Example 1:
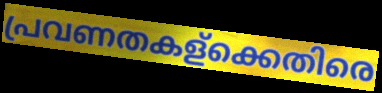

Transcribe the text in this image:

പ്രവണതകള്ക്കെതിരെ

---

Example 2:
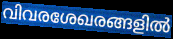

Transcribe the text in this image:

വിവരശേഖരങ്ങളിൽ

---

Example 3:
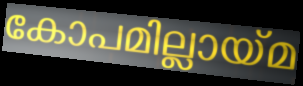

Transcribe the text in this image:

കോപമില്ലായ്മ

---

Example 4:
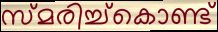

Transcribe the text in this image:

സ്മരിച്ച്കൊണ്ട്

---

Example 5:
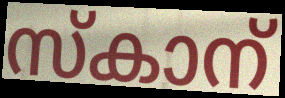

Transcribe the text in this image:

സ്കാന്